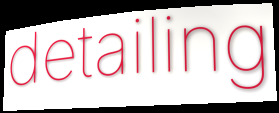
detailing